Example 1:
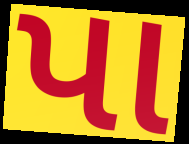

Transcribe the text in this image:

પા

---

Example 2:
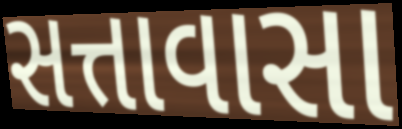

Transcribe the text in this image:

સત્તાવાસા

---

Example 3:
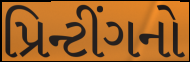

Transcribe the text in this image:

પ્રિન્ટીંગનો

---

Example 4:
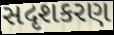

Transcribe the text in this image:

સદૃશકરણ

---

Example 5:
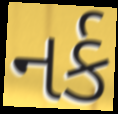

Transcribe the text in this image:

નર્ક